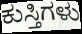
ಕುಸ್ತಿಗಳು